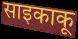
साइकाकू